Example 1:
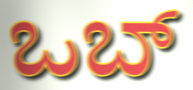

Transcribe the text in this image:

ಒಬ್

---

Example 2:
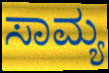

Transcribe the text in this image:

ಸಾಮ್ಯ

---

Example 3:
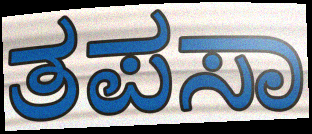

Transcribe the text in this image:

ತಪಸಾ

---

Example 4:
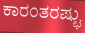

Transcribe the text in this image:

ಕಾರಂತರಷ್ಟು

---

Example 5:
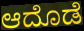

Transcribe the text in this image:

ಆದೊಡೆ